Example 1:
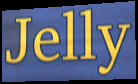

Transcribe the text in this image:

Jelly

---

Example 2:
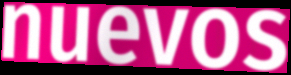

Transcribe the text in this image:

nuevos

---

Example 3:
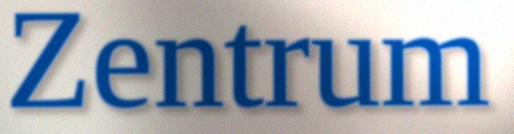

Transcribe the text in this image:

Zentrum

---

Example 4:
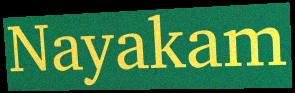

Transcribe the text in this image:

Nayakam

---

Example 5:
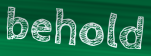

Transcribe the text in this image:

behold